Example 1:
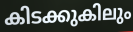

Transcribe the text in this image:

കിടക്കുകിലും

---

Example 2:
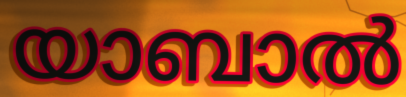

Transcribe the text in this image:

യാബാൽ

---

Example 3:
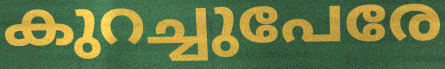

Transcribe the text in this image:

കുറച്ചുപേരേ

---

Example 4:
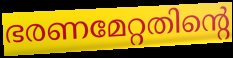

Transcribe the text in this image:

ഭരണമേറ്റതിന്റെ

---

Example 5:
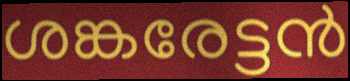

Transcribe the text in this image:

ശങ്കരേട്ടൻ